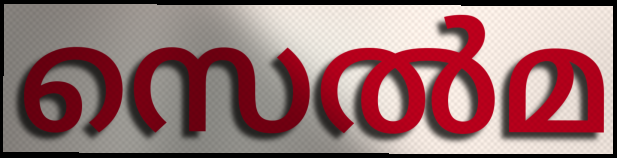
സെൽമ